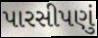
પારસીપણું